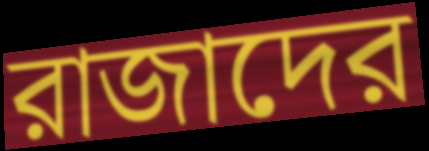
রাজাদের